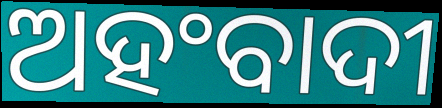
ଅହଂବାଦୀ